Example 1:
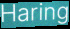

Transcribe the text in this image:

Haring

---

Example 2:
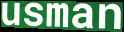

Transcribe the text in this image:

usman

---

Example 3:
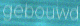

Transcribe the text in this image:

gebouwd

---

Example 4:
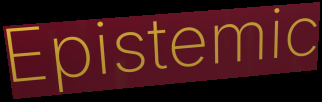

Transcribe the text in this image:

Epistemic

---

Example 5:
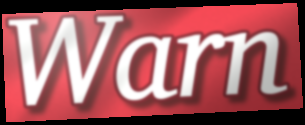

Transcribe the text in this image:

Warn